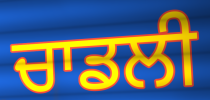
ਚਾਡਲੀ